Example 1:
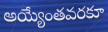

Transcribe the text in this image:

అయ్యేంతవరకూ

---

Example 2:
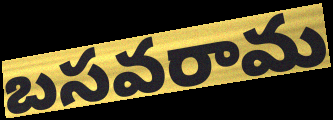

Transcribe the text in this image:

బసవరామ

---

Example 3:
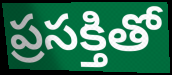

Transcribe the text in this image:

ప్రసక్తితో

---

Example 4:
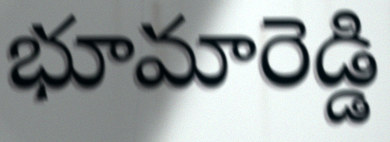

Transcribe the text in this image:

భూమారెడ్డి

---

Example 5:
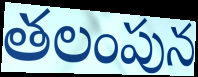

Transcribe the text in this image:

తలంపున